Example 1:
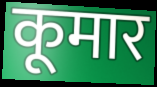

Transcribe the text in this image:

कूमार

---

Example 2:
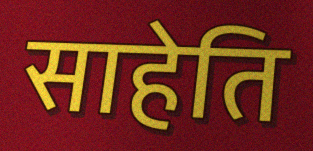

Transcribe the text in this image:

साहेति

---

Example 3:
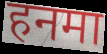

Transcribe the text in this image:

हनमा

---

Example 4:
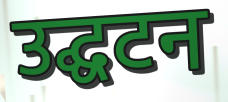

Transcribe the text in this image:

उद्घटन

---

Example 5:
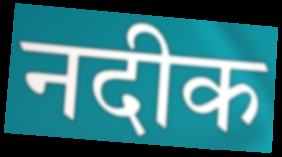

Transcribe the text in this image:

नदीक